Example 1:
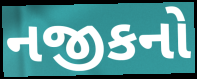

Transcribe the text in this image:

નજીકનો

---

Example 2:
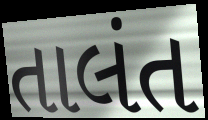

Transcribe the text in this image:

તાલંત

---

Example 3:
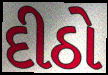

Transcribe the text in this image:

દીઠો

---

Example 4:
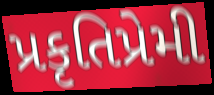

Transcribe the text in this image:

પ્રકૃતિપ્રેમી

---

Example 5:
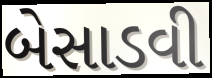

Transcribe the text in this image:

બેસાડવી